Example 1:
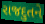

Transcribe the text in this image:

રાજદુતને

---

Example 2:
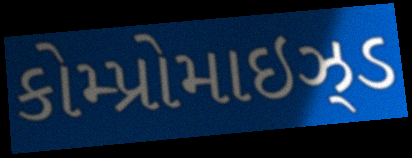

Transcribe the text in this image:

કોમ્પ્રોમાઇઝ્ડ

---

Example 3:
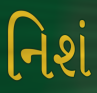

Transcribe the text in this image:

નિશં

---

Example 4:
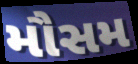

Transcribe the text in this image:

મૌસમ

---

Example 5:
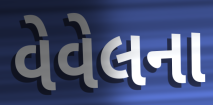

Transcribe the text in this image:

વેવેલના